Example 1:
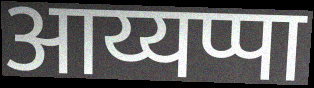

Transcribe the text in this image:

आय्यप्पा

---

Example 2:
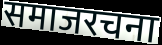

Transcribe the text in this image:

समाजरचना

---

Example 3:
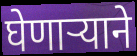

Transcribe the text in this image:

घेणाऱ्याने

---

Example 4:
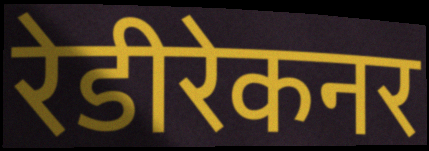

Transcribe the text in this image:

रेडीरेकनर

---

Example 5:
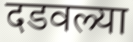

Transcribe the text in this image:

दडवल्या